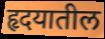
हृदयातील